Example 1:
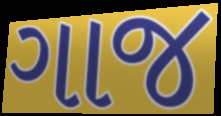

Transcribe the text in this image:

ગાજ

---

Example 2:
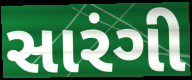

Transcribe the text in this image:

સારંગી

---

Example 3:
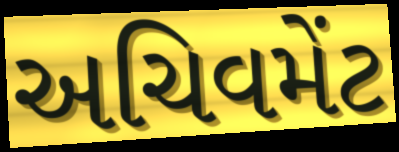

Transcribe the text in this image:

અચિવમેંટ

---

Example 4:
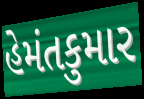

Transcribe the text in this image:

હેમંતકુમાર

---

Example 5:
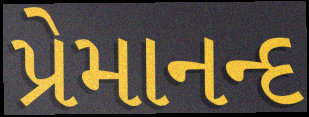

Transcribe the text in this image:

પ્રેમાનન્દ